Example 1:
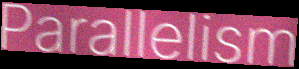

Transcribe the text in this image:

Parallelism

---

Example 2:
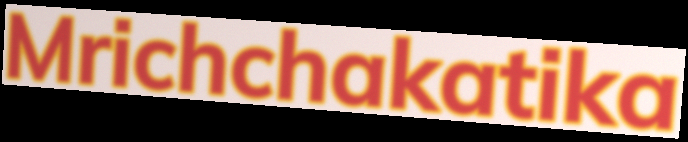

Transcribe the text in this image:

Mrichchakatika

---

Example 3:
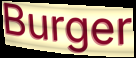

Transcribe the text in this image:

Burger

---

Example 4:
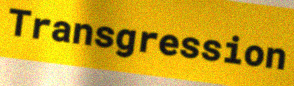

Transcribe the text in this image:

Transgression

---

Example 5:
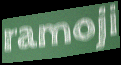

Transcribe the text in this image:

ramoji